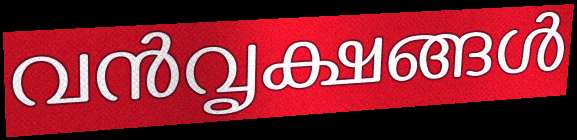
വൻവൃക്ഷങ്ങൾ